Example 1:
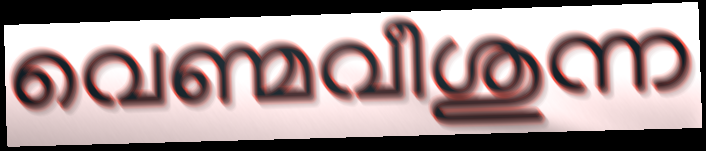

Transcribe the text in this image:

വെണ്മവീശുന്ന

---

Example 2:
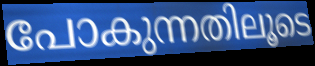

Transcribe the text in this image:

പോകുന്നതിലൂടെ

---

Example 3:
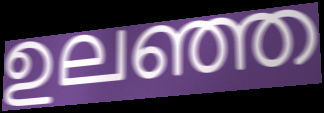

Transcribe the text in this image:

ഉലഞ്ഞ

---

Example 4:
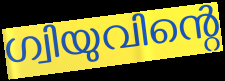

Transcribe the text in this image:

ഗ്വിയുവിന്റെ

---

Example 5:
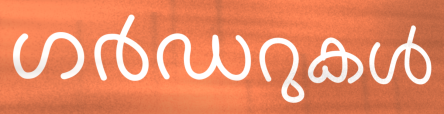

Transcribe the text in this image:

ഗർഡറുകൾ